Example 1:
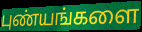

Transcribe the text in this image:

புண்யங்களை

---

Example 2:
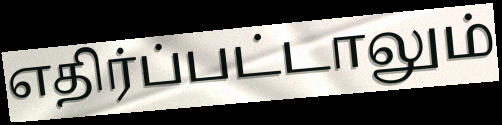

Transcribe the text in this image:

எதிர்ப்பட்டாலும்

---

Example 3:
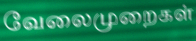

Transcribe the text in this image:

வேலைமுறைகள்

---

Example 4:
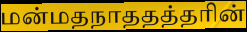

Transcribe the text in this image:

மன்மதநாததத்தரின்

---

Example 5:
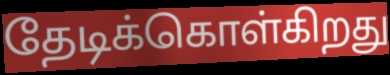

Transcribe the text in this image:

தேடிக்கொள்கிறது